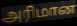
அரிமான